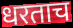
धरताच